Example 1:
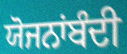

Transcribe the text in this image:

ਯੋਜਨਾਂਬੰਦੀ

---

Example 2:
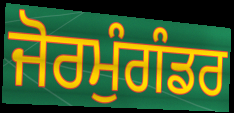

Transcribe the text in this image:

ਜੋਰਮੁੰਗੰਡਰ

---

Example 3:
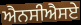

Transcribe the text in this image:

ਐਨਸੀਐਸਏ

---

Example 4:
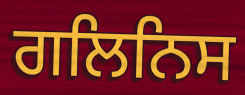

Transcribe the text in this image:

ਗਲਿਨਿਸ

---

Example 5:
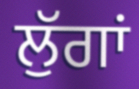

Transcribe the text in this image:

ਲੁੱਗਾਂ